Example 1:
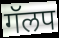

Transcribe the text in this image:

गॅलप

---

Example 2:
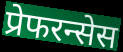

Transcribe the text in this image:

प्रेफरन्सेस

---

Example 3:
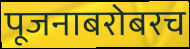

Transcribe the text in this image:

पूजनाबरोबरच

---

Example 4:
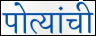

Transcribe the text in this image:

पोत्यांची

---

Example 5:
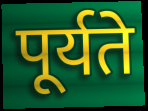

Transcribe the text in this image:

पूर्यते